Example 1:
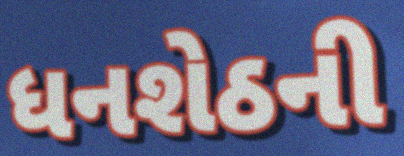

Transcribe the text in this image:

ધનશેઠની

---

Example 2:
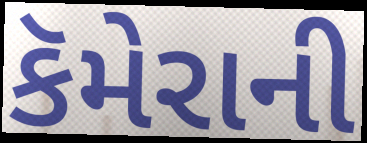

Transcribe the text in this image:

કૅમેરાની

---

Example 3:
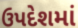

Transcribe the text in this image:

ઉપદેશમાં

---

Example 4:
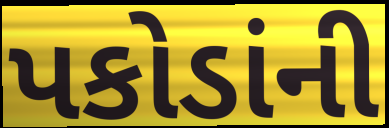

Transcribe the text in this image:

પકોડાંની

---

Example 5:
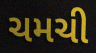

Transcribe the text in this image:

ચમચી